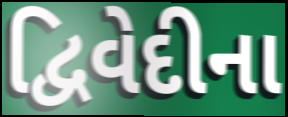
દ્વિવેદીના